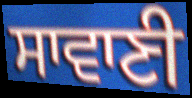
ਸਾਵਾਣੀ